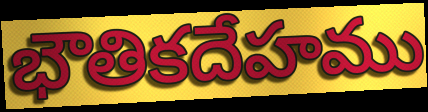
భౌతికదేహము